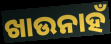
ଖାଉନାହଁ